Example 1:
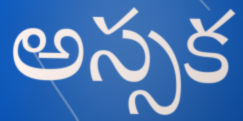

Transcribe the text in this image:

అస్సక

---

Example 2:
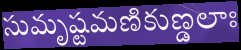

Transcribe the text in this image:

సుమృష్టమణికుణ్డలాః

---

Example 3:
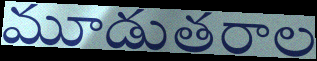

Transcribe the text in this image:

మూడుతరాల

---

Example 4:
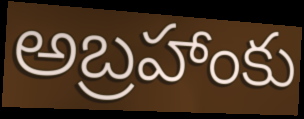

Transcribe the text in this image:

అబ్రహాంకు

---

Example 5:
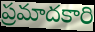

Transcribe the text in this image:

ప్రమాదకారి